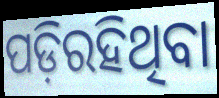
ପଡ଼ିରହିଥିବା